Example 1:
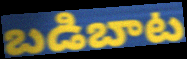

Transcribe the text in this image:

బడిబాట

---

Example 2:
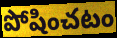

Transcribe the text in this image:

పోషించటం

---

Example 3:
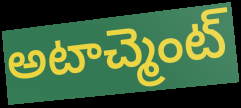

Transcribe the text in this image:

అటాచ్మెంట్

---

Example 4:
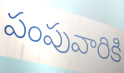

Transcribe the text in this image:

పంపువారికి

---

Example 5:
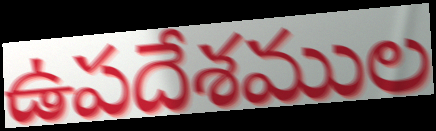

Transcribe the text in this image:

ఉపదేశముల